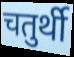
चतुर्थी